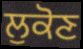
ਲੁਕੋਣ